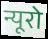
न्यूरो